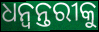
ଧନ୍ବନ୍ତରୀକୁ